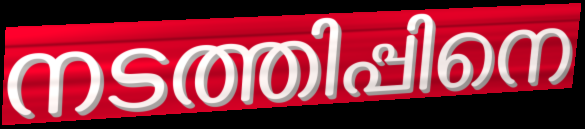
നടത്തിപ്പിനെ